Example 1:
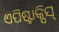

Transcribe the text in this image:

ଏପିଷ୍ଟାକ୍ସିସ୍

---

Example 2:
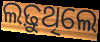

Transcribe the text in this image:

ଲଢ଼ୁଥିଲେ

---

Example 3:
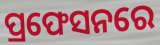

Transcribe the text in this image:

ପ୍ରଫେସନରେ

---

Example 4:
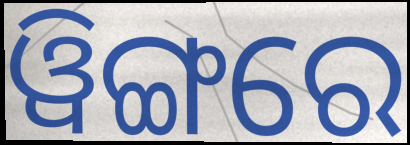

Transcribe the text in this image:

ୱିଙ୍ଗରେ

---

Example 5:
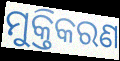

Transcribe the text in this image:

ମୁକ୍ତିକରଣ